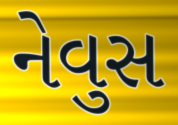
નેવુસ